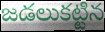
జడలుకట్టిన